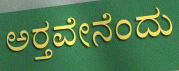
ಅರ‍್ತವೇನೆಂದು